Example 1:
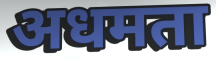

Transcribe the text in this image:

अधमता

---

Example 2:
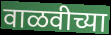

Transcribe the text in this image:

वाळवीच्या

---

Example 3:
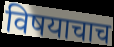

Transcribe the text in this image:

विषयाचाच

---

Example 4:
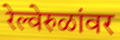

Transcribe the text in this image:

रेल्वेरुळांवर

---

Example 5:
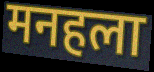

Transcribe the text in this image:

मनहला